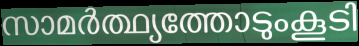
സാമർത്ഥ്യത്തോടുംകൂടി